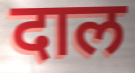
दाल